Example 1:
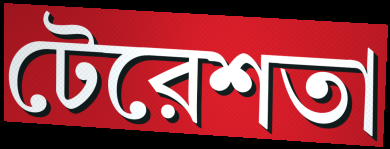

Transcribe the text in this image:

টেরেশতা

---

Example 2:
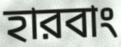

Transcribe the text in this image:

হারবাং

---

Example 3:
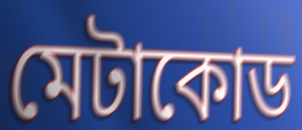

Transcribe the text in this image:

মেটাকোড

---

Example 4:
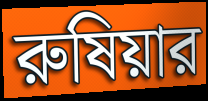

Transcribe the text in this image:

রুষিয়ার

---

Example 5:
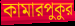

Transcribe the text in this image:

কামারপুকুর